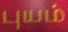
புயம்